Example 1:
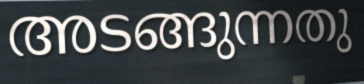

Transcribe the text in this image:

അടങ്ങുന്നതു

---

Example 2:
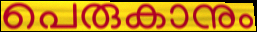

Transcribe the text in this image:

പെരുകാനും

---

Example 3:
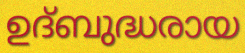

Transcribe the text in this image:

ഉദ്ബുദ്ധരായ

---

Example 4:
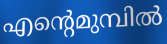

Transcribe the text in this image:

എന്റെമുമ്പിൽ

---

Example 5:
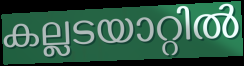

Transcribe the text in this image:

കല്ലടയാറ്റിൽ